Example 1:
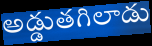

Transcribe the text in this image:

అడ్డుతగిలాడు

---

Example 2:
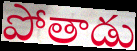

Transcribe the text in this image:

పోతాడు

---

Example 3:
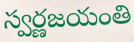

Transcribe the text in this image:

స్వర్ణజయంతి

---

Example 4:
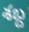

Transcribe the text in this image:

శబ్ద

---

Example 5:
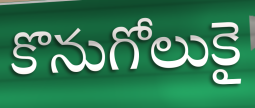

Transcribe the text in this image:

కొనుగోలుకై